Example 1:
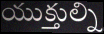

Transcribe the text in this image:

యుక్తుల్ని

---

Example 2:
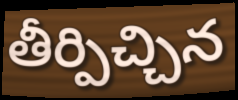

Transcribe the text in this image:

తీర్పిచ్చిన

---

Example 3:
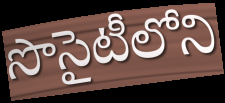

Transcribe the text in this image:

సొసైటీలోని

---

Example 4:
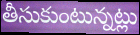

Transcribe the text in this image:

తీసుకుంటున్నట్లు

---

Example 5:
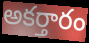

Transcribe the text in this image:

అకర్తారం